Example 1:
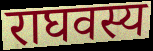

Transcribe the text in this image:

राघवस्य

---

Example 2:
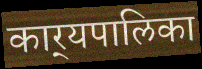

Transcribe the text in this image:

कार्यपालिका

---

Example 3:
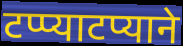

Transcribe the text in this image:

टप्प्याटप्याने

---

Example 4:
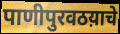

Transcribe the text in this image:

पाणीपुरवठय़ाचे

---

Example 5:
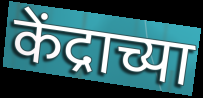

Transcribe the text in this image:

केंद्राच्या